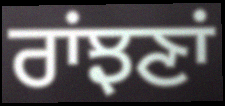
ਰਾਂਝਣਾਂ